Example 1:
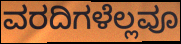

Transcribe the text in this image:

ವರದಿಗಳೆಲ್ಲವೂ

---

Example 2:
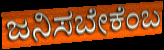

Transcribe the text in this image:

ಜನಿಸಬೇಕೆಂಬ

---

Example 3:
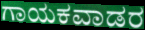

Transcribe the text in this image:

ಗಾಯಕವಾಡರ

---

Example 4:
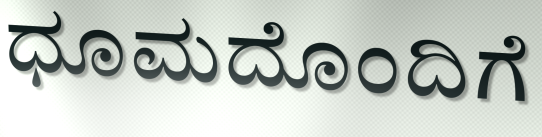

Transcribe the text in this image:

ಧೂಮದೊಂದಿಗೆ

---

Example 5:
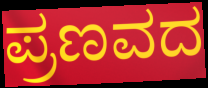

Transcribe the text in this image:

ಪ್ರಣವದ